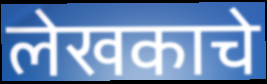
लेखकाचे